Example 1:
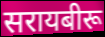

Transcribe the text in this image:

सरायबीरू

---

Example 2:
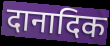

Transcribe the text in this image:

दानादिक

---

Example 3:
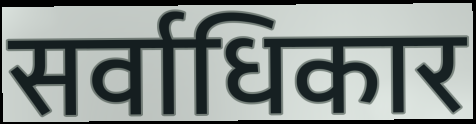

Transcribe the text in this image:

सर्वाधिकार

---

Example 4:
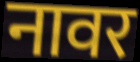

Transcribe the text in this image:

नावर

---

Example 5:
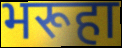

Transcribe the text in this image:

भरूहा